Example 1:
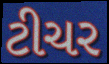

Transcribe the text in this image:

ટીચર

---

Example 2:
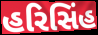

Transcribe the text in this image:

હરિસિંહ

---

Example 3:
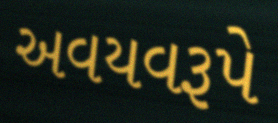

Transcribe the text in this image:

અવયવરૂપે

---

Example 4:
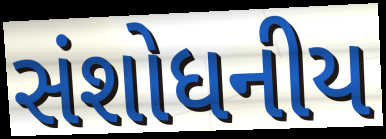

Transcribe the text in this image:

સંશોધનીય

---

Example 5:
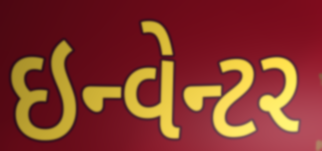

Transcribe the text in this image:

ઇન્વેન્ટર